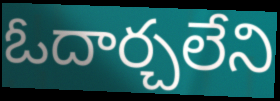
ఓదార్చలేని